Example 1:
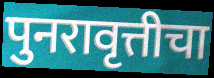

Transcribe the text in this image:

पुनरावृत्तीचा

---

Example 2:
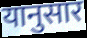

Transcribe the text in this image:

यानुसार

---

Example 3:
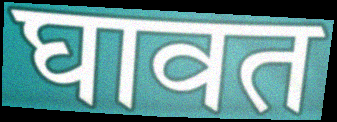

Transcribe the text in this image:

घावत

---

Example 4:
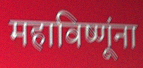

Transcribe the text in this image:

महाविष्णूंना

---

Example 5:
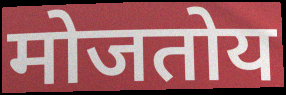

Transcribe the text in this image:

मोजतोय